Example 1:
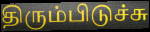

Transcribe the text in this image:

திரும்பிடுச்சு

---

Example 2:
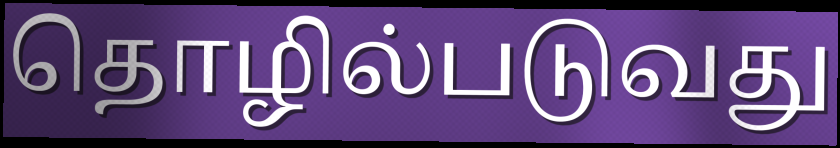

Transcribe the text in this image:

தொழில்படுவது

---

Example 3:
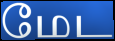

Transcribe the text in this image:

மேட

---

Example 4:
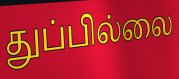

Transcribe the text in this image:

துப்பில்லை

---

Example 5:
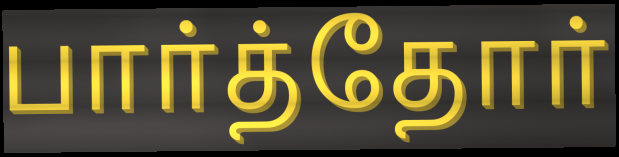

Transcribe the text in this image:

பார்த்தோர்